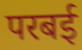
परबई